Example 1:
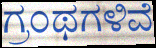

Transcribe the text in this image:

ಗ್ರಂಥಗಳಿವೆ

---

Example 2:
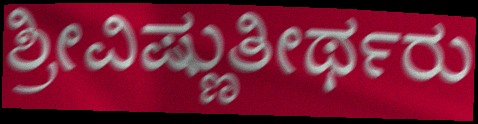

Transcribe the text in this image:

ಶ್ರೀವಿಷ್ಣುತೀರ್ಥರು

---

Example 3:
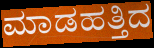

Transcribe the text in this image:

ಮಾಡಹತ್ತಿದ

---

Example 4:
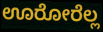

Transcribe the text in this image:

ಊರೋರೆಲ್ಲ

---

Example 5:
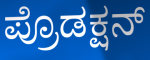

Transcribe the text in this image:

ಪ್ರೊಡಕ್ಷನ್